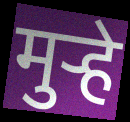
मुऱ्हे